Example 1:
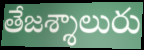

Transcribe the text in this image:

తేజశ్శాలురు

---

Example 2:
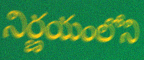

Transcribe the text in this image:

నిర్ణయంలోని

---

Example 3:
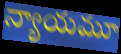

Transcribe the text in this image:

న్యాయమూ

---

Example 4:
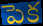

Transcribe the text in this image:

పెక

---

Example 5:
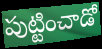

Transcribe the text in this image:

పుట్టించాడో